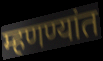
म्हणण्यांत